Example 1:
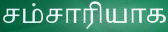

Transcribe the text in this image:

சம்சாரியாக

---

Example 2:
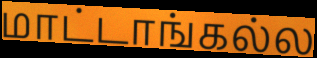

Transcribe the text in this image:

மாட்டாங்கல்ல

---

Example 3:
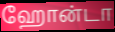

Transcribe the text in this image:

ஹோன்டா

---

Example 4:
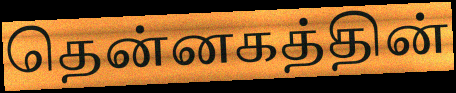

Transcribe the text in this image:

தென்னகத்தின்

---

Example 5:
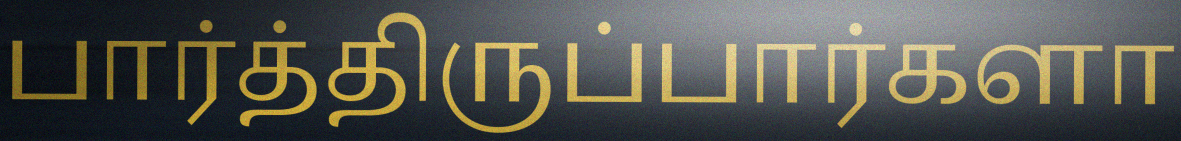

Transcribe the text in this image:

பார்த்திருப்பார்களா